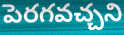
పెరగవచ్చని